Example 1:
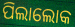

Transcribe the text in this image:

ପିଲାଲୋକ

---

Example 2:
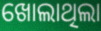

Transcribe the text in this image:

ଖୋଲାଥିଲା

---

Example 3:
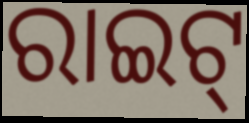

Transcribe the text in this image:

ରାଇଟ୍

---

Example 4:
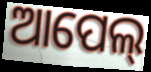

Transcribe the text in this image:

ଆପେଲ୍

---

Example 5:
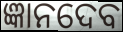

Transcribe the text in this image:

ଜ୍ଞାନଦେବ